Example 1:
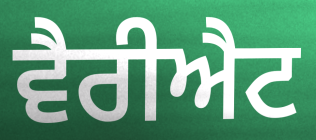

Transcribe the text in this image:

ਵੈਰੀਐਟ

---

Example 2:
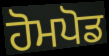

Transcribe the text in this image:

ਹੋਮਪੋਡ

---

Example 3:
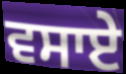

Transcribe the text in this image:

ਵਸਾਏ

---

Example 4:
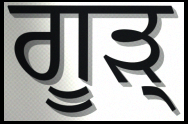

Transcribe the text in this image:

ਗੂੜ੍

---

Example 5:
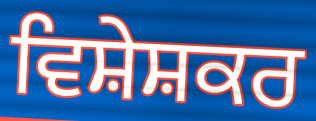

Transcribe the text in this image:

ਵਿਸ਼ੇਸ਼ਕਰ